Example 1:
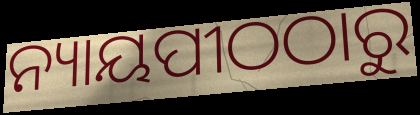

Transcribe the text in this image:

ନ୍ୟାୟପୀଠଠାରୁ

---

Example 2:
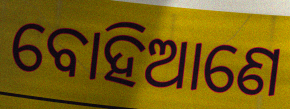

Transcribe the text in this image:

ବୋହିଆଣେ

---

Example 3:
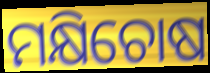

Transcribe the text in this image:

ମକ୍ଷିଚୋଷ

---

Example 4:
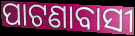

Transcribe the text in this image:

ପାଟଣାବାସୀ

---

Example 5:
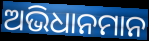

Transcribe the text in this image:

ଅଭିଧାନମାନ